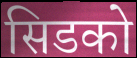
सिडको